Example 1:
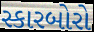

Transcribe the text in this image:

સ્કારબોરો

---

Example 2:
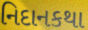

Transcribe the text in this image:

નિદાનકથા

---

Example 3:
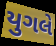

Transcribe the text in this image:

યુગલે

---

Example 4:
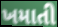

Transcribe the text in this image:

ખમાતી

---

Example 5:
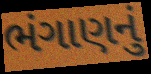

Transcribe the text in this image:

ભંગાણનું